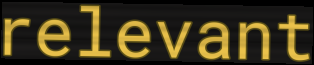
relevant